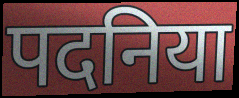
पदनिया